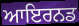
ਆਇਰਨਡ